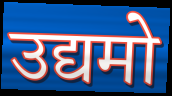
उद्यमो